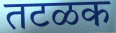
तटळक